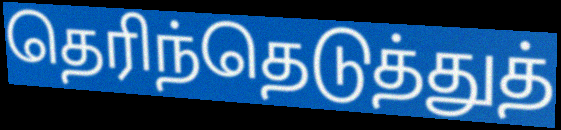
தெரிந்தெடுத்துத்